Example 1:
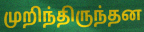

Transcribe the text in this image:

முறிந்திருந்தன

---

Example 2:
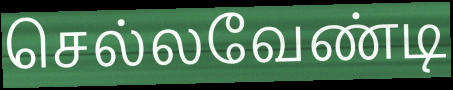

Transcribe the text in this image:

செல்லவேண்டி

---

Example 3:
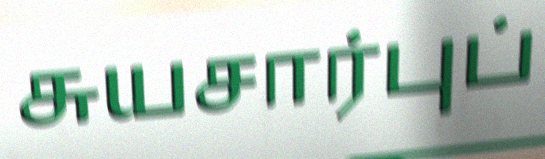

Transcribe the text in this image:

சுயசார்புப்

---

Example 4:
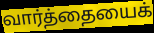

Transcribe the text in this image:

வார்த்தையைக்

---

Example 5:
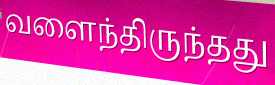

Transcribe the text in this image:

வளைந்திருந்தது